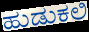
ಹುಡುಕಲಿ